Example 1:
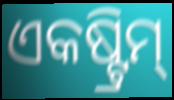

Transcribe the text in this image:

ଏକଷ୍ଟ୍ରିମ୍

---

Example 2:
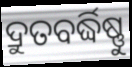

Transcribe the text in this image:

ଦ୍ରୁତବର୍ଦ୍ଧିଷ୍ଣୁ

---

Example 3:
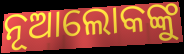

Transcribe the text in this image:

ନୂଆଲୋକଙ୍କୁ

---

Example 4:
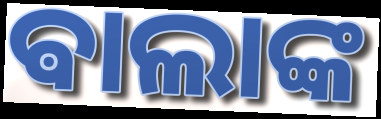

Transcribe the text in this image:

ଵାଲାଙ୍କ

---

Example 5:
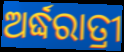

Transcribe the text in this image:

ଅର୍ଦ୍ଧରାତ୍ରୀ